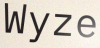
Wyze